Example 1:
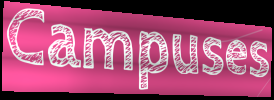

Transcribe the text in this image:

Campuses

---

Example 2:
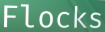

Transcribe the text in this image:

Flocks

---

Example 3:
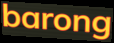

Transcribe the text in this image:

barong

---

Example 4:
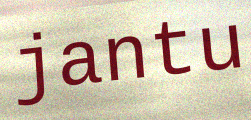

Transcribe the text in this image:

jantu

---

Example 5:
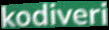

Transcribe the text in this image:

kodiveri